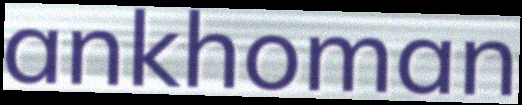
ankhoman